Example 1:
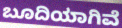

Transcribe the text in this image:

ಬೂದಿಯಾಗಿವೆ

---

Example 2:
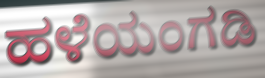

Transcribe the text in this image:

ಹಳೆಯಂಗಡಿ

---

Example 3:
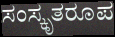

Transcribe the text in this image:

ಸಂಸ್ಕೃತರೂಪ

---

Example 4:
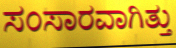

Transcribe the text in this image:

ಸಂಸಾರವಾಗಿತ್ತು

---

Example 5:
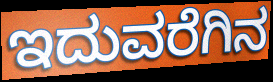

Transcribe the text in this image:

ಇದುವರೆಗಿನ